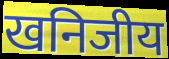
खनिजीय